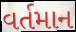
વર્તમાન